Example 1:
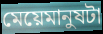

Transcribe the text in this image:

মেয়েমানুষটা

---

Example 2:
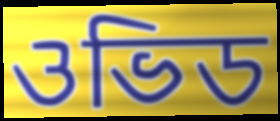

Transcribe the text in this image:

ওভিড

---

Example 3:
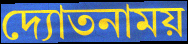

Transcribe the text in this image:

দ্যোতনাময়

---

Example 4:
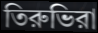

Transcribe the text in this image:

তিরুভিরা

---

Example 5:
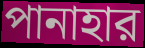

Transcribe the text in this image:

পানাহার